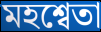
মহশ্বেতা